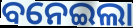
ବନେଇଲା